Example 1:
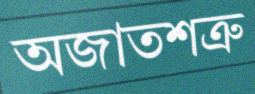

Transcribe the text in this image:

অজাতশত্রু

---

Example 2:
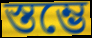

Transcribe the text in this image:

স্তম্ভে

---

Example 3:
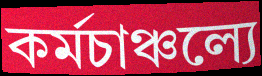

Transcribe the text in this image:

কর্মচাঞ্চল্যে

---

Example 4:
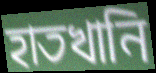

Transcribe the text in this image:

হাতখানি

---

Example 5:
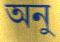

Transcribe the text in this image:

অনু